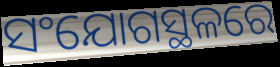
ସଂଯୋଗସ୍ଥଳରେ